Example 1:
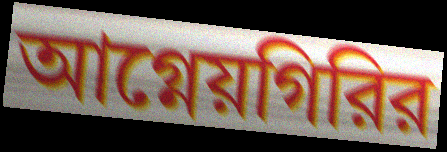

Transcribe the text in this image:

আগ্নেয়গিরির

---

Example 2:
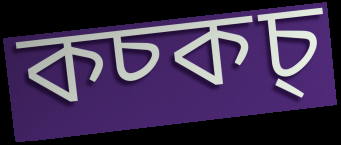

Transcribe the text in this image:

কচ্কচ্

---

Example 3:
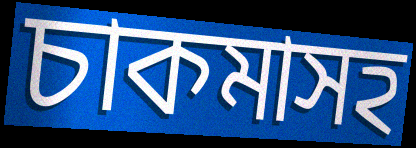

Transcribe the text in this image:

চাকমাসহ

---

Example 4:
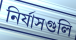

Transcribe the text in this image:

নির্যাসগুলি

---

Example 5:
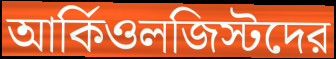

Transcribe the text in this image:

আর্কিওলজিস্টদের